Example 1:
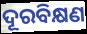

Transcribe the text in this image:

ଦୂରବିକ୍ଷଣ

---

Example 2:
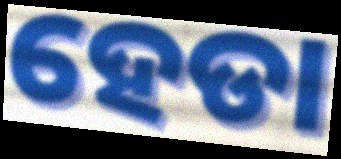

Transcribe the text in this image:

ହେଡା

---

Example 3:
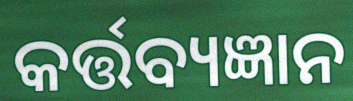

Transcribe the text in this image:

କର୍ତ୍ତବ୍ୟଜ୍ଞାନ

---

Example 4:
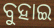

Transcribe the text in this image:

ବୁହାଇ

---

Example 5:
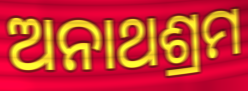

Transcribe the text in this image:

ଅନାଥଶ୍ରମ